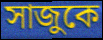
সাজুকে